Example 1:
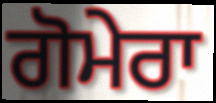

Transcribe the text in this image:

ਗੋਮੇਰਾ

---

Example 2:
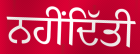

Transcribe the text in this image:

ਨਹੀਂਦਿੱਤੀ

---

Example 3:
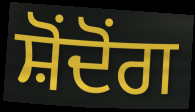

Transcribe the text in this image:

ਸ਼ੋਂਦੋਂਗ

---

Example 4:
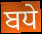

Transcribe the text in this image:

ਬਧੇ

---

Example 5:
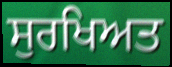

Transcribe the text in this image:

ਸੁਰਖਿਅਤ